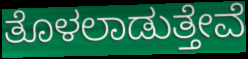
ತೊಳಲಾಡುತ್ತೇವೆ